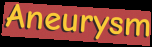
Aneurysm